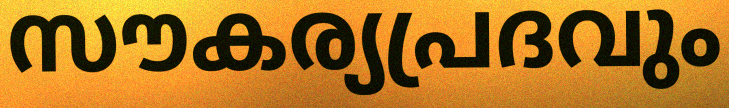
സൗകര്യപ്രദവും